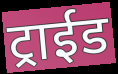
ट्राईड